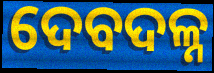
ଦେବଦଳ୍ନ